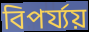
বিপৰ্য্যয়